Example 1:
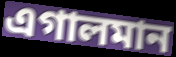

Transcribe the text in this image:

এগালমান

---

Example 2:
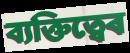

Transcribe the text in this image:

ব্যক্তিত্বেৰ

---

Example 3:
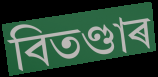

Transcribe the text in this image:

বিতণ্ডাৰ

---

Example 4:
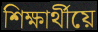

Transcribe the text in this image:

শিক্ষাৰ্থীয়ে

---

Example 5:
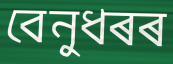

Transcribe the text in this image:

বেনুধৰৰ